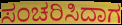
ಸಂಚರಿಸಿದಾಗ